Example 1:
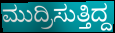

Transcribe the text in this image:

ಮುದ್ರಿಸುತ್ತಿದ್ದ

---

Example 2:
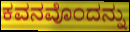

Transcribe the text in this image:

ಕವನವೊಂದನ್ನು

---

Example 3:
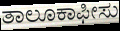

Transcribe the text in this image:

ತಾಲೂಕಾಫೀಸು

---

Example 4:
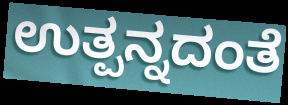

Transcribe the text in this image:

ಉತ್ಪನ್ನದಂತೆ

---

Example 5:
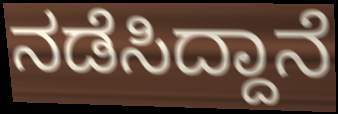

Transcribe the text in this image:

ನಡೆಸಿದ್ದಾನೆ